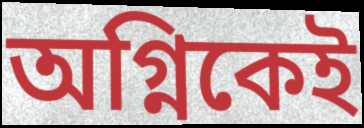
অগ্নিকেই